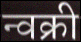
न्वक्री